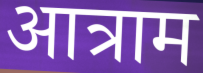
आत्राम